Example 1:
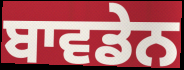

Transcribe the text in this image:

ਬਾਵਡੇਨ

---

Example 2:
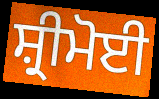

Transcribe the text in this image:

ਸ਼੍ਰੀਮੋਈ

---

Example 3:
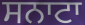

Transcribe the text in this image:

ਸਨਾਟਾ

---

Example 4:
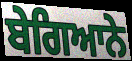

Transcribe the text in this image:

ਬੇਗਿਆਨੇ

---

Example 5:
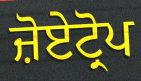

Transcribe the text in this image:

ਜ਼ੋਏਟ੍ਰੋਪ